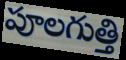
పూలగుత్తి